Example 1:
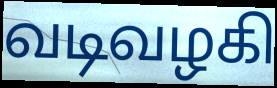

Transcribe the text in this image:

வடிவழகி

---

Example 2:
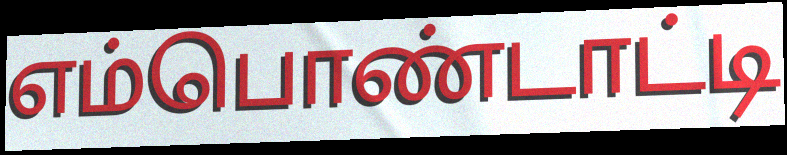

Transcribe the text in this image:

எம்பொண்டாட்டி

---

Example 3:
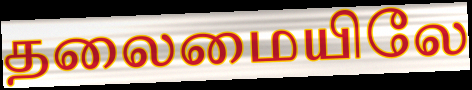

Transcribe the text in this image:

தலைமையிலே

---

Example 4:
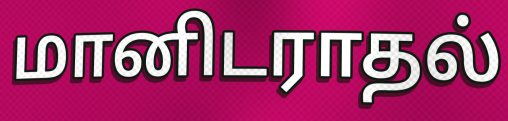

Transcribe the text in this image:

மானிடராதல்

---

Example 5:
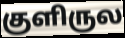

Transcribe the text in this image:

குளிருல